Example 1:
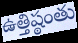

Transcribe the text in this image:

ఉత్తిష్ఠంతు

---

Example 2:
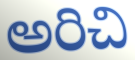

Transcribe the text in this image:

అరిచి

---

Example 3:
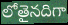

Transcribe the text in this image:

లోతైనదిగా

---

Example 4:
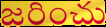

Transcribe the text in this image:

జరించు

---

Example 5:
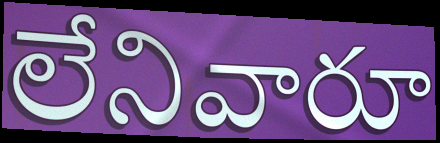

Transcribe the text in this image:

లేనివారూ